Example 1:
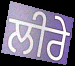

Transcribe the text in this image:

ਲੀਰੇ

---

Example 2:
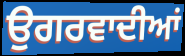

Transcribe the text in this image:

ਉਗਰਵਾਦੀਆਂ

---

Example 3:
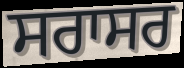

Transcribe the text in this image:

ਸਰਾਸਰ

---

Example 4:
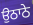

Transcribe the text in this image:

ਉਠਾਠੇ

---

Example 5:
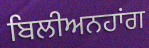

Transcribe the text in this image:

ਬਿਲੀਅਨਹਾਂਗ